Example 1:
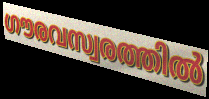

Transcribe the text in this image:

ഗൗരവസ്വരത്തിൽ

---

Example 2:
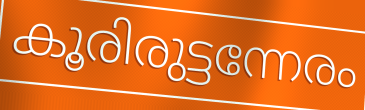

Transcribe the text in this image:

കൂരിരുട്ടന്നേരം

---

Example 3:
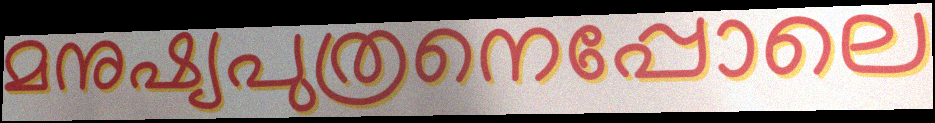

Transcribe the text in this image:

മനുഷ്യപുത്രനെപ്പോലെ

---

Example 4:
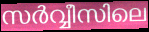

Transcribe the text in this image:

സർവ്വീസിലെ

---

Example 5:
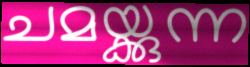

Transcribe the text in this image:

ചമയ്ക്കുന്ന